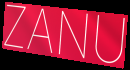
ZANU